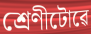
শ্ৰেণীটোৱে